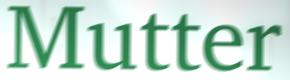
Mutter